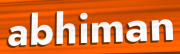
abhiman